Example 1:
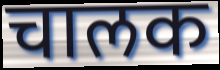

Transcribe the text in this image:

चालक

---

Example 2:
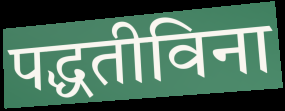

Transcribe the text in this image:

पद्धतीविना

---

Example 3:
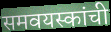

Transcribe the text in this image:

समवयस्कांची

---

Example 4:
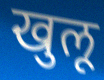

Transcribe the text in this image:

खुलू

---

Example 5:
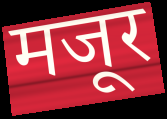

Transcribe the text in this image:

मजूर